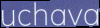
uchava